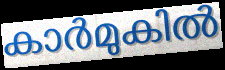
കാർമുകിൽ